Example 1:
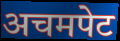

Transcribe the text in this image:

अचमपेट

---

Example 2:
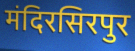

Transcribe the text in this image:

मंदिरसिरपुर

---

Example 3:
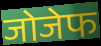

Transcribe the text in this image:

जोजेफ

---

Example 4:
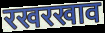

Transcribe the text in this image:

रखरखाव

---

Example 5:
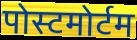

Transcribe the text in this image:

पोस्टमोर्टम